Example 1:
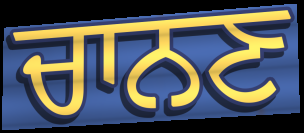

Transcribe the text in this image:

ਚਾਨਣ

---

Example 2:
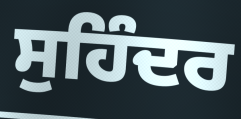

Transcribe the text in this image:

ਸੁਹਿੰਦਰ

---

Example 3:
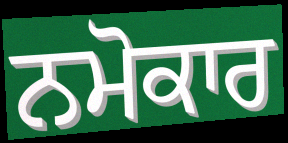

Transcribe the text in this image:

ਨਮੋਕਾਰ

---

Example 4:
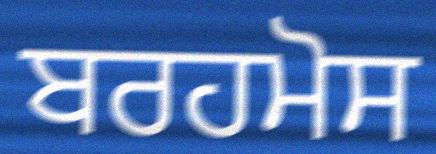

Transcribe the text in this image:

ਬਰਹਮੋਸ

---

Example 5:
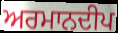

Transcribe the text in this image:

ਅਰਮਾਨਦੀਪ